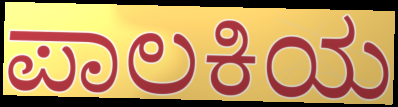
ಪಾಲಕಿಯ